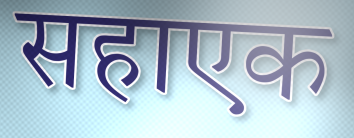
सहाएक